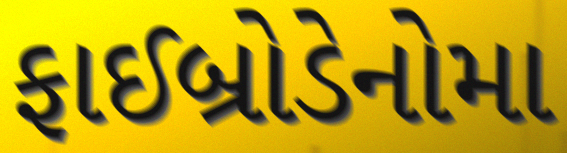
ફાઈબ્રોડેનોમા